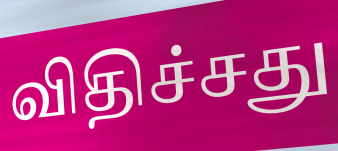
விதிச்சது